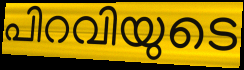
പിറവിയുടെ